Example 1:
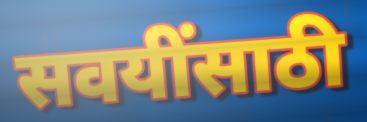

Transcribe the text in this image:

सवयींसाठी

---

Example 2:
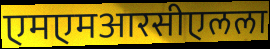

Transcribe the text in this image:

एमएमआरसीएलला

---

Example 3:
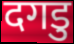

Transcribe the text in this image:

दगडु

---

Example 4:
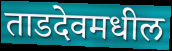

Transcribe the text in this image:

ताडदेवमधील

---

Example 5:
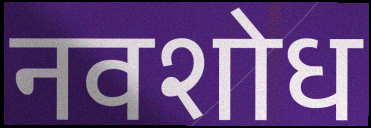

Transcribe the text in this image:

नवशोध